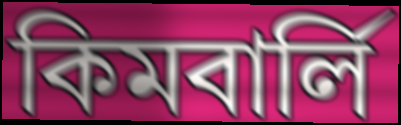
কিমবার্লি